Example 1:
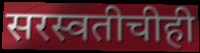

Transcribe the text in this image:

सरस्वतीचीही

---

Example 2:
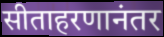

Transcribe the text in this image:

सीताहरणानंतर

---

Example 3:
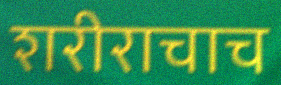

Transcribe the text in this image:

शरीराचाच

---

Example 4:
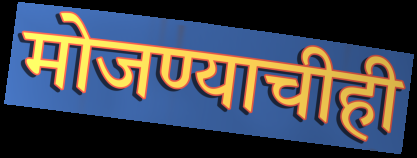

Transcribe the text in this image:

मोजण्याचीही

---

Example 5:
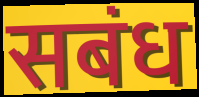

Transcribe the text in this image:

सबंध